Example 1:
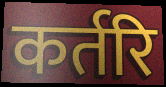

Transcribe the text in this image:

कर्तरि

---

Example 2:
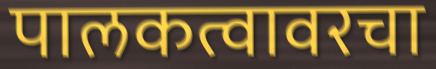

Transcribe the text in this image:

पालकत्वावरचा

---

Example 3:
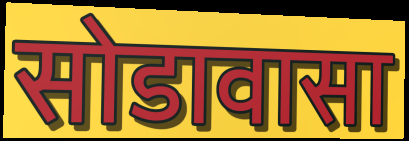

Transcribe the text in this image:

सोडावासा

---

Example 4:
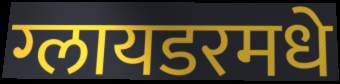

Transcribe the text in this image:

ग्लायडरमधे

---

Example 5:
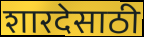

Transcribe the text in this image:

शारदेसाठी